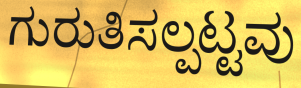
ಗುರುತಿಸಲ್ಪಟ್ಟವು